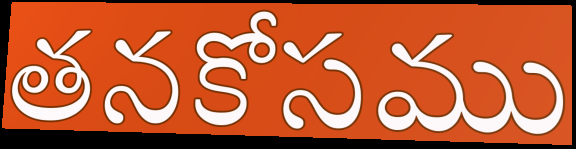
తనకోసము